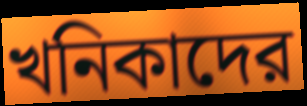
খনিকাদের